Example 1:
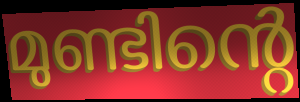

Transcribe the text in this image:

മുണ്ടിന്റെ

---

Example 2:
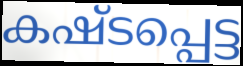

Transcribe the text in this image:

കഷ്ടപ്പെട്ട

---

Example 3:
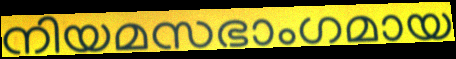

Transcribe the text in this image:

നിയമസഭാംഗമായ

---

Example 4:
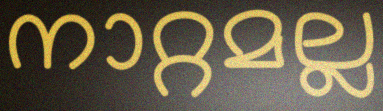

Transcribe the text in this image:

നാറ്റമല്ല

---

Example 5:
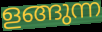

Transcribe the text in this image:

ളങ്ങുന്ന